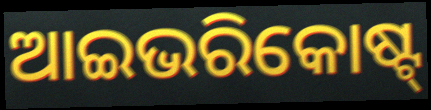
ଆଇଭରିକୋଷ୍ଟ୍